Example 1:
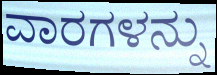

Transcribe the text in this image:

ವಾರಗಳನ್ನು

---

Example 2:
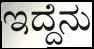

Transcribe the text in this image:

ಇದ್ದೆನು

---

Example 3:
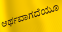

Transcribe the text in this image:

ಅರ್ಥವಾಗದೆಯೂ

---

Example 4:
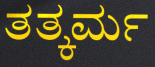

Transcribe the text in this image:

ತತ್ಕರ್ಮ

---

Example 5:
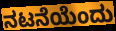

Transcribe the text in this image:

ನಟನೆಯೆಂದು